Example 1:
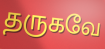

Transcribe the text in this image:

தருகவே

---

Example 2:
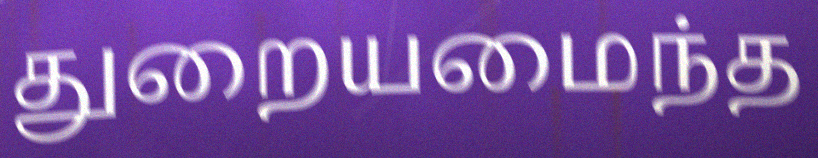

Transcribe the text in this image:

துறையமைந்த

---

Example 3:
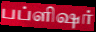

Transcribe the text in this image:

பப்ளிஷர்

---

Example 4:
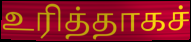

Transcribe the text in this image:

உரித்தாகச்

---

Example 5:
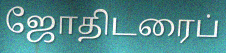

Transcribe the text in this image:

ஜோதிடரைப்